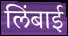
लिंबाई